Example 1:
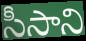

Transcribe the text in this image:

సీసాని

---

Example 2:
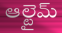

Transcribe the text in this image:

ఆల్టైమ్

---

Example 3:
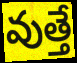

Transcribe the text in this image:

వుత్తే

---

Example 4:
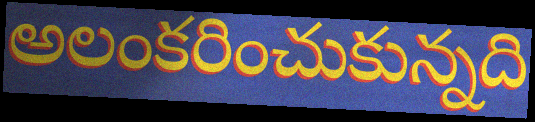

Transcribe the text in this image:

అలంకరించుకున్నది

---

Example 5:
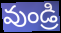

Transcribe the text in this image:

వుండ్రి